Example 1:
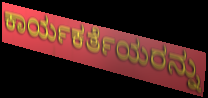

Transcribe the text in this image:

ಕಾರ್ಯಕರ್ತೆಯರನ್ನು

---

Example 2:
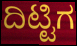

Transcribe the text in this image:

ದಿಟ್ಟಿಗ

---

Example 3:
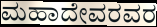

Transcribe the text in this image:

ಮಹಾದೇವರವರ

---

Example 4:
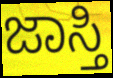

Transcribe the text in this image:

ಜಾಸ್ತಿ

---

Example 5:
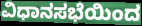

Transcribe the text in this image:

ವಿಧಾನಸಭೆಯಿಂದ